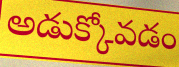
అడుక్కోవడం